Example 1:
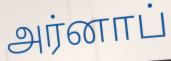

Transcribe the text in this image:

அர்னாப்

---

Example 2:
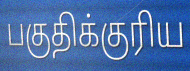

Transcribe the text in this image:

பகுதிக்குரிய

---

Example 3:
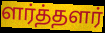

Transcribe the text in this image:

ளர்த்தளர்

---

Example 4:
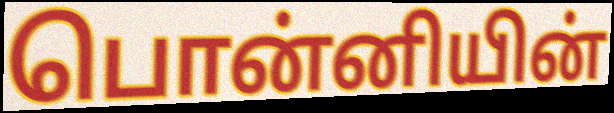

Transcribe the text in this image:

பொன்னியின்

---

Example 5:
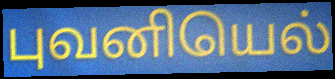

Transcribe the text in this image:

புவனியெல்